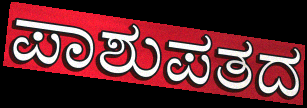
ಪಾಶುಪತದ